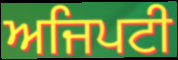
ਅਜਿਪਟੀ